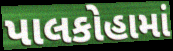
પાલકોહામાં